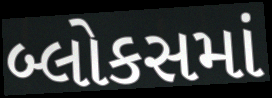
બ્લોકસમાં